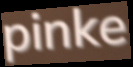
pinke